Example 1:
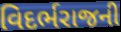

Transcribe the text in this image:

વિદર્ભરાજની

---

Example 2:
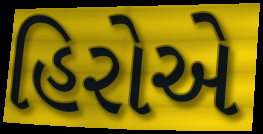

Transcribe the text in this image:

હિરોએ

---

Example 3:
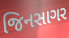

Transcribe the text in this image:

જિનસાગર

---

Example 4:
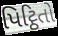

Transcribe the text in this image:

પિટ્ઠિતો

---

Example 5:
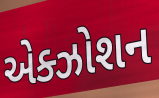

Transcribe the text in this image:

એક્ઝોશન